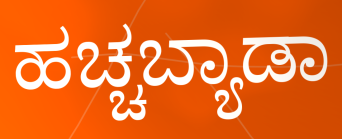
ಹಚ್ಚಬ್ಯಾಡಾ